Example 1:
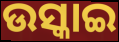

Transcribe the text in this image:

ଉସ୍କାଇ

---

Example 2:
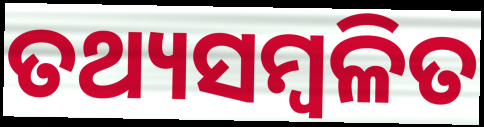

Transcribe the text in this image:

ତଥ୍ୟସମ୍ୱଳିତ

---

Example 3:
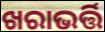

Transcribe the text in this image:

ଖରାଭର୍ତ୍ତି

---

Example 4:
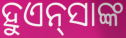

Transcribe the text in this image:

ହୁଏନ୍‍ସାଙ୍କ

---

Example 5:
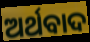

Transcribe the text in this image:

ଅର୍ଥବାଦ